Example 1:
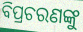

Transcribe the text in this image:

ବିପ୍ରଚରଣଙ୍କୁ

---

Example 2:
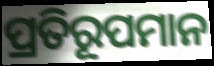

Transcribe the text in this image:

ପ୍ରତିରୂପମାନ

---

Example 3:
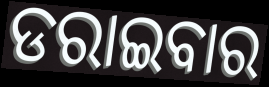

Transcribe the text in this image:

ଡରାଇବାର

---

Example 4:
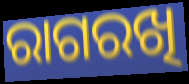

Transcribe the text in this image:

ରାଗରଖି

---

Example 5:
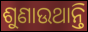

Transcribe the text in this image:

ଶୁଣାଉଥାନ୍ତି